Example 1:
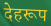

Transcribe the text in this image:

देहरूप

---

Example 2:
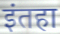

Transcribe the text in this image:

इंतहा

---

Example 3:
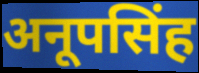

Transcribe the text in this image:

अनूपसिंह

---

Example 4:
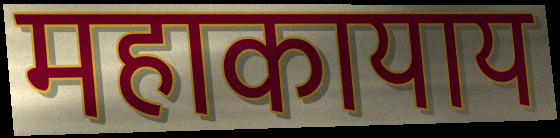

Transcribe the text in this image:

महाकायाय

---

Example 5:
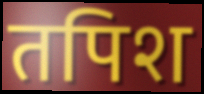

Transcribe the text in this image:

तपिश